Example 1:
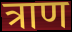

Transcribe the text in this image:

त्राण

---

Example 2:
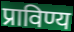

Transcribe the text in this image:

प्राविण्य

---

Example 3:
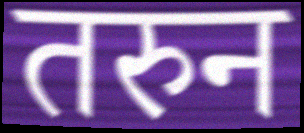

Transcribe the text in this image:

तरुन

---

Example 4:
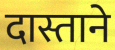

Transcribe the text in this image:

दास्ताने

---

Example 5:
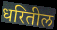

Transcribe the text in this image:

धरितील